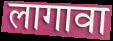
लागावा